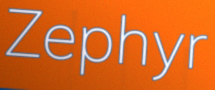
Zephyr